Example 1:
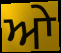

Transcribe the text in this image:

ਆੇ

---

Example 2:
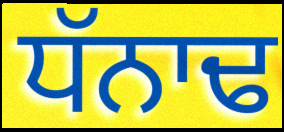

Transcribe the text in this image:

ਧੱਨਾਢ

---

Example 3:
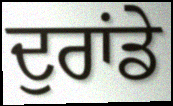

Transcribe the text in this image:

ਦੁਰਾਂਡੇ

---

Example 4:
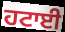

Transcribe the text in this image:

ਹਟਾਈ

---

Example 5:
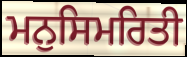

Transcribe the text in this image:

ਮਨੁਸਿਮਰਿਤੀ